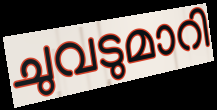
ചുവടുമാറി